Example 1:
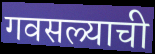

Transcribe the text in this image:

गवसल्याची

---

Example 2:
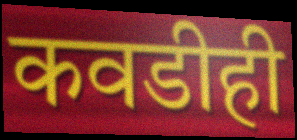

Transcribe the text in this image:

कवडीही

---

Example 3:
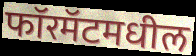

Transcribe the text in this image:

फॉरमॅटमधील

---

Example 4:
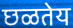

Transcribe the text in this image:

छळतेय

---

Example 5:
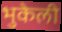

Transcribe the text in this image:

भुकेली